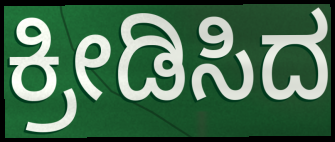
ಕ್ರೀಡಿಸಿದ